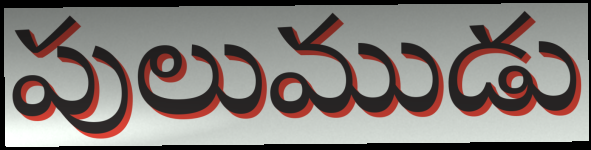
పులుముడు